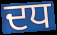
ਦਧ